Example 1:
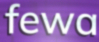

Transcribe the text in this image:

fewa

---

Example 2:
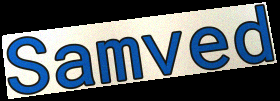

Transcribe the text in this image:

Samved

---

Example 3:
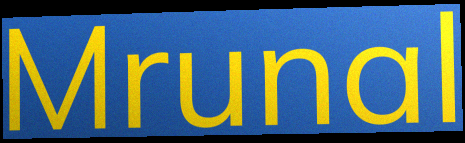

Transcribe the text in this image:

Mrunal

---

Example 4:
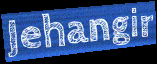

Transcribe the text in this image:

Jehangir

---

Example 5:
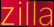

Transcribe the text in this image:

zilla